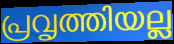
പ്രവൃത്തിയല്ല